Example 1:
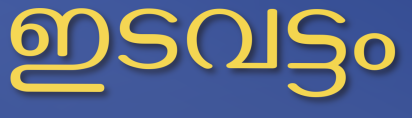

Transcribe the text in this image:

ഇടവട്ടം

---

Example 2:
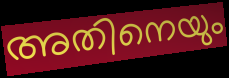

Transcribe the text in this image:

അതിനെയും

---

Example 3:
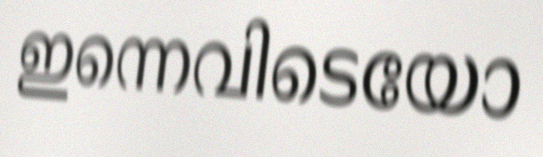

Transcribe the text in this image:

ഇന്നെവിടെയോ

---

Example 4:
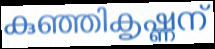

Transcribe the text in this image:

കുഞ്ഞികൃഷ്ണന്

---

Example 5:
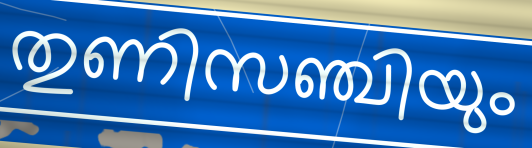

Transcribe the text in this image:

തുണിസഞ്ചിയും